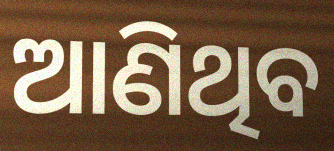
ଆଣିଥିବ